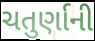
ચતુર્ણાની